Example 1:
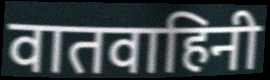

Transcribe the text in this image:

वातवाहिनी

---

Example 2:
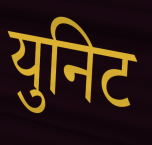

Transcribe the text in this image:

युनिट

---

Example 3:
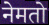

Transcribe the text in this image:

नेमतो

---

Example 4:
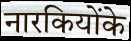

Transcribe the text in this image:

नारकियोंके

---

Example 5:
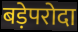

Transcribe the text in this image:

बड़ेपरोदा